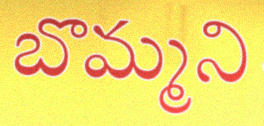
బొమ్మని